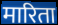
मारिता